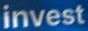
invest